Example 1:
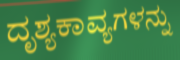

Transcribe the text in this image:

ದೃಶ್ಯಕಾವ್ಯಗಳನ್ನು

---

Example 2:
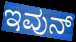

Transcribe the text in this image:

ಇವುನ್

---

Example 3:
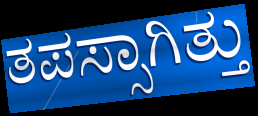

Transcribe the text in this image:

ತಪಸ್ಸಾಗಿತ್ತು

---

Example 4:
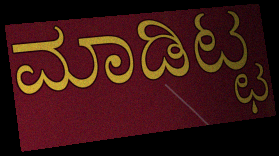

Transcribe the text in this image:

ಮಾಡಿಟ್ಟ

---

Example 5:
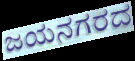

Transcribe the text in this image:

ಜಯನಗರದ